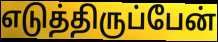
எடுத்திருப்பேன்